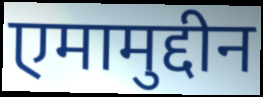
एमामुद्दीन